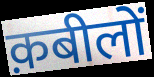
क़बीलों